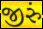
જીરું